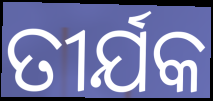
ତୀର୍ଯକ